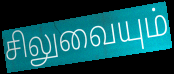
சிலுவையும்